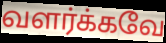
வளர்க்கவே